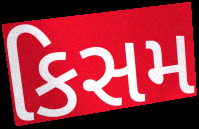
કિસમ